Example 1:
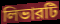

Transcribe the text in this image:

লিভারটি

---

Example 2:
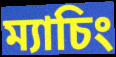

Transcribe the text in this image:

ম্যাচিং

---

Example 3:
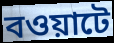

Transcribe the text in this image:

বওয়াটে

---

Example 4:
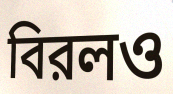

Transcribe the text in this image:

বিরলও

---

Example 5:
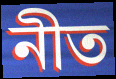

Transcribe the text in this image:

নীত